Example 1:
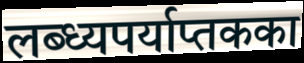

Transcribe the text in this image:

लब्ध्यपर्याप्तकका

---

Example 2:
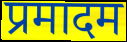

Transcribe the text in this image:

प्रमादम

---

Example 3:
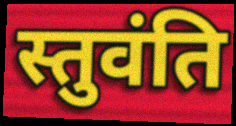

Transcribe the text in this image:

स्तुवंति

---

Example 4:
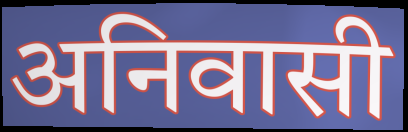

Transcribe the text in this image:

अनिवासी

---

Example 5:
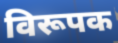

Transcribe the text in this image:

विरूपक